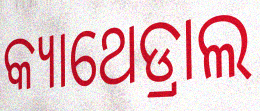
କ୍ୟାଥେଡ୍ରାଲ